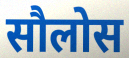
सौलोस